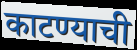
काटण्याची